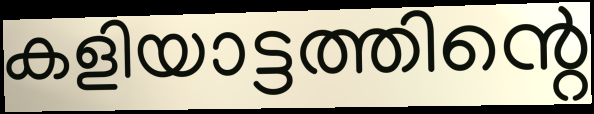
കളിയാട്ടത്തിന്റെ